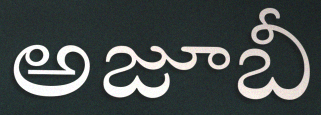
అజూబీ